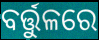
ବର୍ତ୍ତୁଳରେ